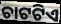
ଚାଟଟିଏ